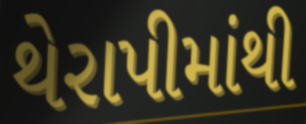
થેરાપીમાંથી